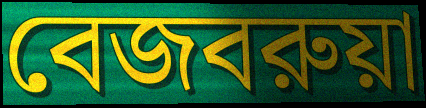
বেজবরুয়া